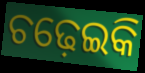
ଚଢ଼େଇକି